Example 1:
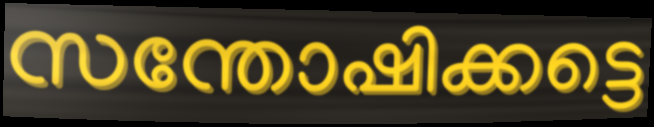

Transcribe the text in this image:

സന്തോഷിക്കട്ടെ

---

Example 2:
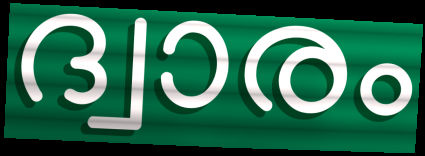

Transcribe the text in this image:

ദ്വാരം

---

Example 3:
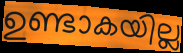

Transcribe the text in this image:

ഉണ്ടാകയില്ല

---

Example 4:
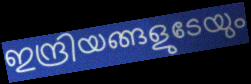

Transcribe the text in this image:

ഇന്ദ്രിയങ്ങളുടേയും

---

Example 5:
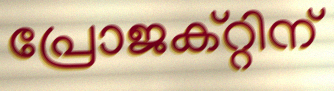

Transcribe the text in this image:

പ്രോജക്റ്റിന്